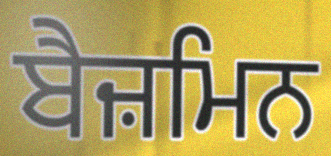
ਬੈਜ਼ਮਿਨ